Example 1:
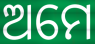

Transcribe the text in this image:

ଅମେ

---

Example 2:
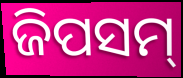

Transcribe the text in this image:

ଜିପସମ୍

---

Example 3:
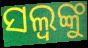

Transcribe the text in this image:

ସଲ୍ୱଙ୍କୁ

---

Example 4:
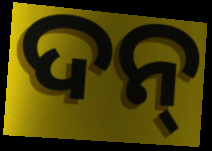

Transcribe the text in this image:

ଦନ୍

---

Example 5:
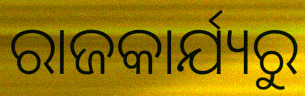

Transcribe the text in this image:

ରାଜକାର୍ଯ୍ୟରୁ